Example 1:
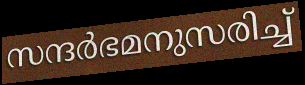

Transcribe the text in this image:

സന്ദർഭമനുസരിച്ച്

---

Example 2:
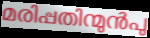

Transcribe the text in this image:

മരിപ്പതിന്മുൻപു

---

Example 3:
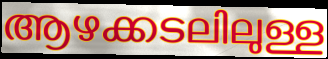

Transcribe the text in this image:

ആഴക്കടലിലുള്ള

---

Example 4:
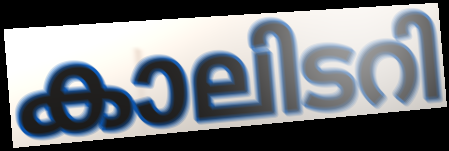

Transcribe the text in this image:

കാലിടറി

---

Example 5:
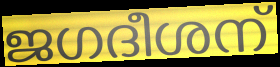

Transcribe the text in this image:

ജഗദീശന്